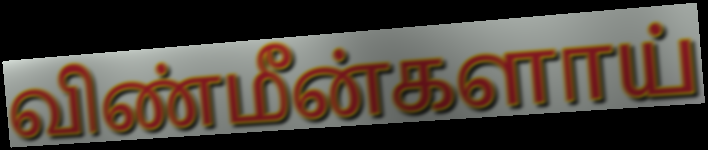
விண்மீன்களாய்